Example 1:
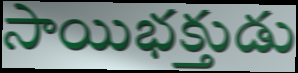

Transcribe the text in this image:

సాయిభక్తుడు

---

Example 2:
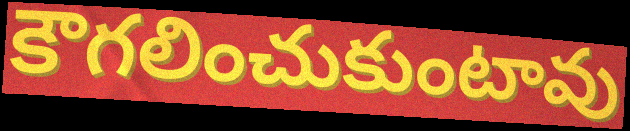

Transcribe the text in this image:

కౌగలించుకుంటావు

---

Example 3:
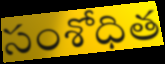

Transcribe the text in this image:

సంశోధిత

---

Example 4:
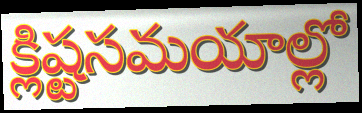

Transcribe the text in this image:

క్లిష్టసమయాల్లో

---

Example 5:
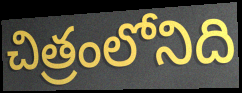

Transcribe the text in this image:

చిత్రంలోనిది